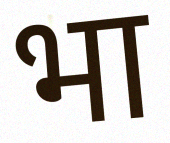
भा